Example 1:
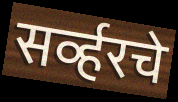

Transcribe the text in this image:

सर्व्हरचे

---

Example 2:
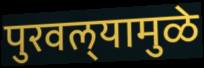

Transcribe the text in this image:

पुरवल्यामुळे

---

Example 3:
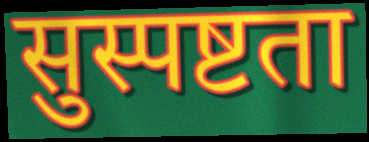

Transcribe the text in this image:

सुस्पष्टता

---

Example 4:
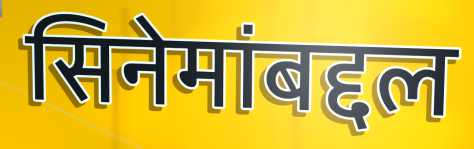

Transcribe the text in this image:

सिनेमांबद्दल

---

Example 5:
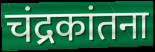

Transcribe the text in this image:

चंद्रकांतना